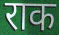
राक